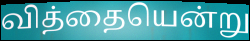
வித்தையென்று